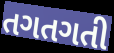
તગતગતી